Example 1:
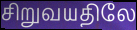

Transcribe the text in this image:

சிறுவயதிலே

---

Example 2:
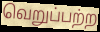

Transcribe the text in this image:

வெறுப்பற்ற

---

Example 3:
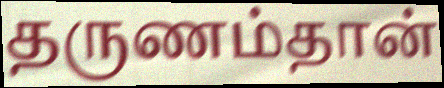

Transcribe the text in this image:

தருணம்தான்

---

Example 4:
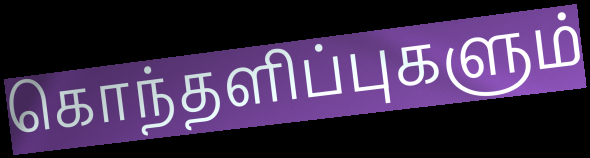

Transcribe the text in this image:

கொந்தளிப்புகளும்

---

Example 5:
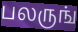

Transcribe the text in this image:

பலருங்